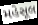
મહેસૂલ